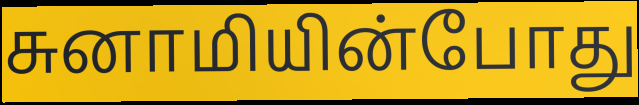
சுனாமியின்போது